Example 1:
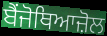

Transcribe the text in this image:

ਬੈਂਜੋਥਿਆਜ਼ੋਲ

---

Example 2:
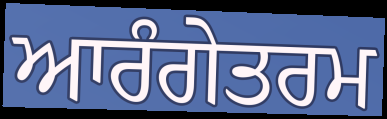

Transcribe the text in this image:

ਆਰੰਗੇਤਰਮ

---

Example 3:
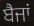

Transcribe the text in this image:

ਬੈਜਾਂ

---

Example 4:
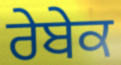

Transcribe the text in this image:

ਰੇਬੇਕ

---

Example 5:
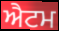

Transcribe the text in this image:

ਐਟਮ